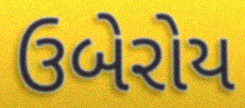
ઉબેરોય